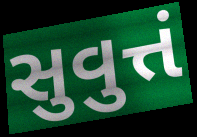
સુવુત્તં